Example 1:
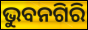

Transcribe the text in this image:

ଭୁବନଗିରି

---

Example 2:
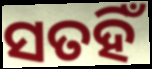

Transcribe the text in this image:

ସତହିଁ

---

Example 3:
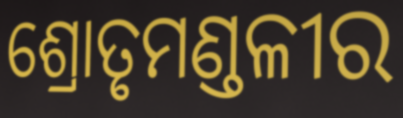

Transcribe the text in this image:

ଶ୍ରୋତୃମଣ୍ଡଳୀର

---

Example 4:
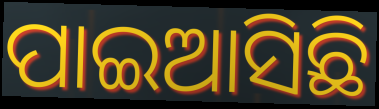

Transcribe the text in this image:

ପାଇଆସିଛି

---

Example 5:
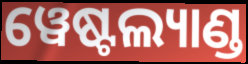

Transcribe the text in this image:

ୱେଷ୍ଟଲ୍ୟାଣ୍ଡ